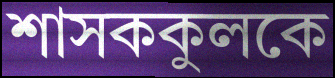
শাসককুলকে